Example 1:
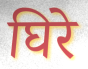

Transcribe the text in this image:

घिरे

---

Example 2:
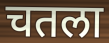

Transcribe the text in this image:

चतला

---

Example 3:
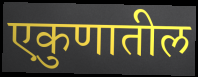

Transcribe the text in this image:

एकुणातील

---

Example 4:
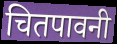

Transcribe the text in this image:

चितपावनी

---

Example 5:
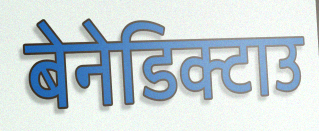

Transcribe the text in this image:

बेनेडिक्टाउ